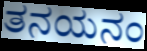
ತನಯನಂ